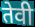
तेवी